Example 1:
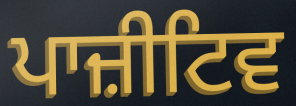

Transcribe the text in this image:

ਪਾਜ਼ੀਟਿਵ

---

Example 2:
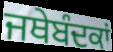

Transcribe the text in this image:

ਜਥੇਬੰਦਕਾਂ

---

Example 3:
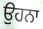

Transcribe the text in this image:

ਉਹਨਾ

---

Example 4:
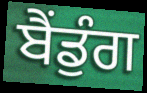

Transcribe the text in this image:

ਬੈਂਡੁੰਗ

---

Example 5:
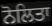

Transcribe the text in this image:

ਨੋਲਿਤਾ